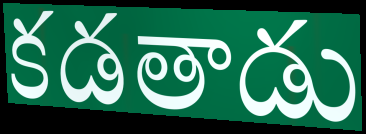
కడతాడు